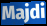
Majdi